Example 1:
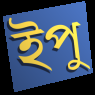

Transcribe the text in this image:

ইপু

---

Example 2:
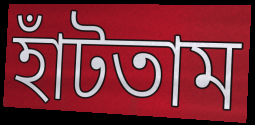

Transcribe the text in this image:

হাঁটতাম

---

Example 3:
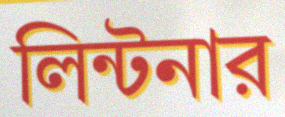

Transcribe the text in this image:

লিন্টনার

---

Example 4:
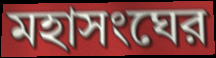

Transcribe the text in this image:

মহাসংঘের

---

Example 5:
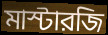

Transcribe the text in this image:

মাস্টারজি